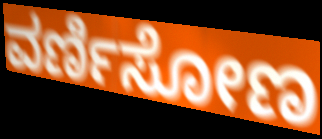
ವರ್ಣಿಸೋಣ